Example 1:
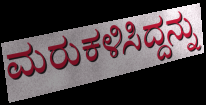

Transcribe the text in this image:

ಮರುಕಳಿಸಿದ್ದನ್ನು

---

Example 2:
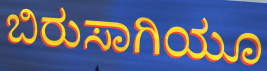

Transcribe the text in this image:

ಬಿರುಸಾಗಿಯೂ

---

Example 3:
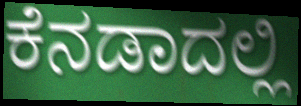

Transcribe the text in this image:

ಕೆನಡಾದಲ್ಲಿ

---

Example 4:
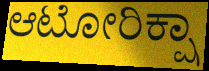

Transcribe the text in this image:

ಆಟೋರಿಕ್ಷಾ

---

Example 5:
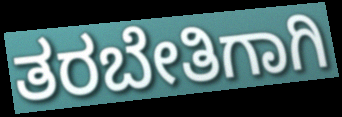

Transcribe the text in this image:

ತರಬೇತಿಗಾಗಿ